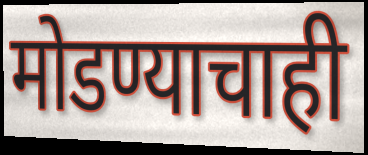
मोडण्याचाही